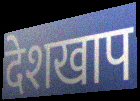
देशखाप